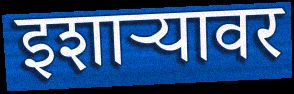
इशार्‍यावर